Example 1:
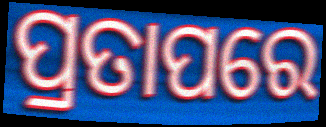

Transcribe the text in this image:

ପ୍ରତାପରେ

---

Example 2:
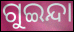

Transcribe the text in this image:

ଗୁଇନ୍ଦା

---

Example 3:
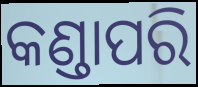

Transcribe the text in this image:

କଣ୍ଡାପରି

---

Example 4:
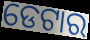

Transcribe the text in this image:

ଡେଟାର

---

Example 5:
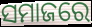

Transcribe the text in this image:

ସମାଜରେ